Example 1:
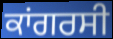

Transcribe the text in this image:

ਕਾਂਗਰਸੀ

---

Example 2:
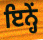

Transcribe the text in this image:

ਇਨ੍ਹੇਂ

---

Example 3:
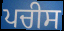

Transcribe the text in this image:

ਪਚੀਸ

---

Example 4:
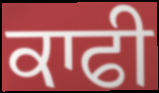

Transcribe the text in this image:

ਕਾਫੀ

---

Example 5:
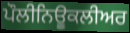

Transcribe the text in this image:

ਪੌਲੀਨਿਊਕਲੀਅਰ